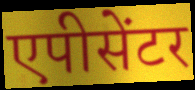
एपीसेंटर